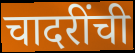
चादरींची